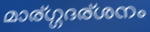
മാര്ഗ്ഗദര്ശനം